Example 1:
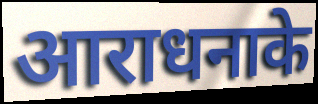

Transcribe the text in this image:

आराधनाके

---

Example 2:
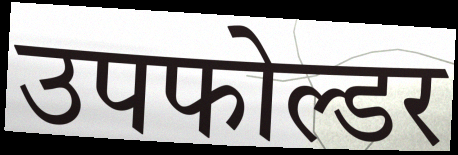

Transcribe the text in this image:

उपफोल्डर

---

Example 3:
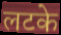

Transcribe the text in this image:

लटके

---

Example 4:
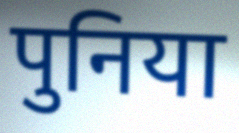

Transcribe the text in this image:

पुनिया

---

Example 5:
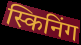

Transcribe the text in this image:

स्किनिंग